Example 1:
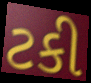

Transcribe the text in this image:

ટકી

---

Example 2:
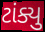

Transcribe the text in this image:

ટાંક્યુ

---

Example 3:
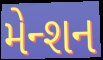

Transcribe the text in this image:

મેન્શન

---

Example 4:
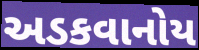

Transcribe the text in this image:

અડકવાનોય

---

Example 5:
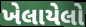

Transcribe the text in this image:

ખેલાયેલો